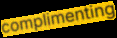
complimenting